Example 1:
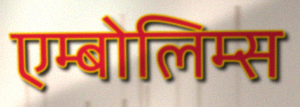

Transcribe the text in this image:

एम्बोलिम्स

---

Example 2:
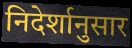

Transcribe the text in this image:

निदेर्शानुसार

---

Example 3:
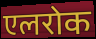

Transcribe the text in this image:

एलरोक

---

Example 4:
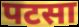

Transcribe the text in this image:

पटसा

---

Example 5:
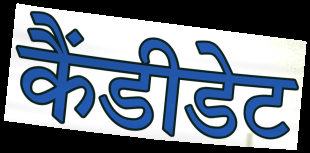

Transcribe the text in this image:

कैंडीडेट